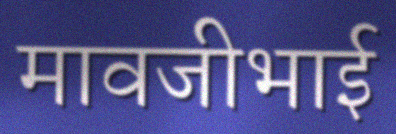
मावजीभाई